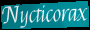
Nycticorax